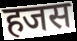
हजस